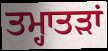
ਤਮ੍ਹਾਤੜਾਂ